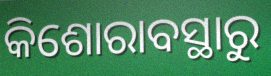
କିଶୋରାବସ୍ଥାରୁ